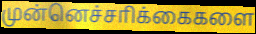
முன்னெச்சரிக்கைகளை